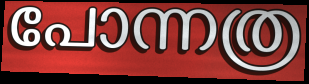
പോന്നത്ര